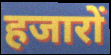
हजारों